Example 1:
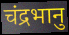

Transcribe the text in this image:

चंद्रभानु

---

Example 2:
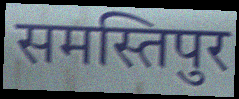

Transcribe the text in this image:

समस्तिपुर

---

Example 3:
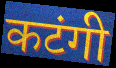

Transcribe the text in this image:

कटंगी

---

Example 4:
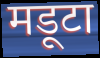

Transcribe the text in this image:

मडूटा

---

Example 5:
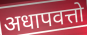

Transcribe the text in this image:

अधापवत्तो